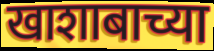
खाशाबाच्या